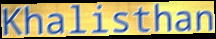
Khalisthan